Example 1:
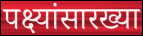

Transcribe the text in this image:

पक्ष्यांसारख्या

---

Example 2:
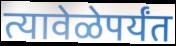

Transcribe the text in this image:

त्यावेळेपर्यंत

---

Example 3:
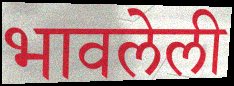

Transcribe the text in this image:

भावलेली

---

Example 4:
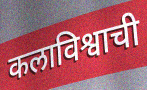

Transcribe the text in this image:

कलाविश्वाची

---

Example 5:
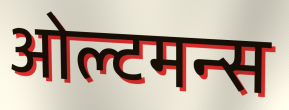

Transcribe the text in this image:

ओल्टमन्स